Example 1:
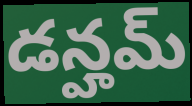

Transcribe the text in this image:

డన్హమ్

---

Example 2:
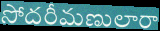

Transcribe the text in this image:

సోదరీమణులారా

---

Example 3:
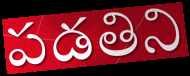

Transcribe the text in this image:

పడతిని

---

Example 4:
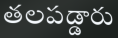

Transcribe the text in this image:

తలపడ్డారు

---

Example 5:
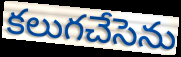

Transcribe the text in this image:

కలుగచేసెను